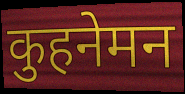
कुहनेमन